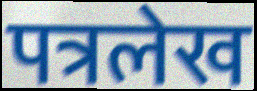
पत्रलेख